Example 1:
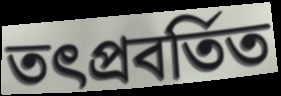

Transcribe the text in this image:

তৎপ্রবর্তিত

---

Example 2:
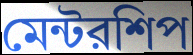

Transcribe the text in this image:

মেন্টরশিপ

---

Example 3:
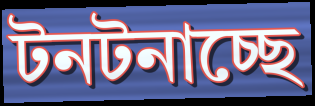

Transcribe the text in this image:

টনটনাচ্ছে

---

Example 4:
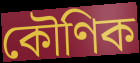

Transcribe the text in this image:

কৌণিক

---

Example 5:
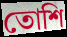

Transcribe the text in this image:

তোশি